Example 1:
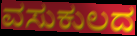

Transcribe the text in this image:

ವಸುಕುಲದ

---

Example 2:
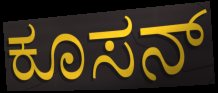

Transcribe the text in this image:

ಕೂಸನ್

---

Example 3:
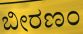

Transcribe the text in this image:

ಬೀರಣಂ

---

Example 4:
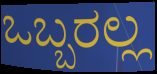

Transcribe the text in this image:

ಒಬ್ಬರಲ್ಲ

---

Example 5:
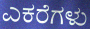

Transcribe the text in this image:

ಎಕರೆಗಳು